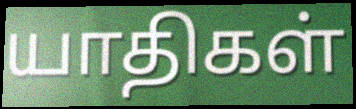
யாதிகள்